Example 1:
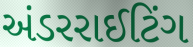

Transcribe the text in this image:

અંડરરાઈટિંગ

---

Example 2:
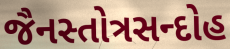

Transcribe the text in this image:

જૈનસ્તોત્રસન્દોહ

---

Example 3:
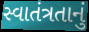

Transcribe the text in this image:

સ્વાતંત્રતાનું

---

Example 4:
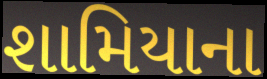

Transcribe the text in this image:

શામિયાના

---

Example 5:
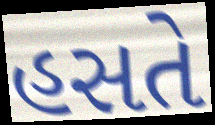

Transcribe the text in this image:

હસતે